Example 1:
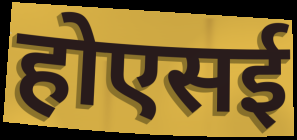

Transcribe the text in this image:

होएसई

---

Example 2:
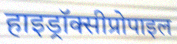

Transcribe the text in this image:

हाइड्रॉक्सीप्रोपाइल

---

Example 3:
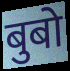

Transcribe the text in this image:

बुबो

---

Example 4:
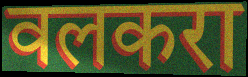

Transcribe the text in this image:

वलकरा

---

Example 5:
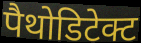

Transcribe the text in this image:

पैथोडिटेक्ट